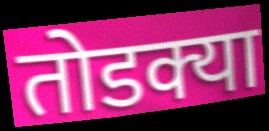
तोडक्‍या